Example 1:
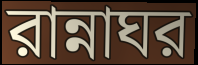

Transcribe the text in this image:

রান্নাঘর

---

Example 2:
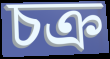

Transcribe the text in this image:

চক্র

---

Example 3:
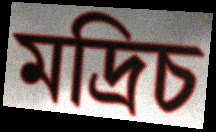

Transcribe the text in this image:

মদ্রিচ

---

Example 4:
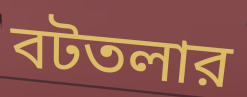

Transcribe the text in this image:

বটতলার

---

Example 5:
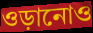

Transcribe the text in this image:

ওড়ানোও